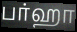
பர்ஹா